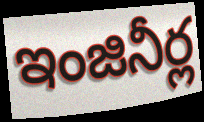
ఇంజినీర్ల